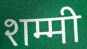
शम्मी